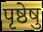
पृष्ठेषु